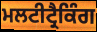
ਮਲਟੀਟ੍ਰੈਕਿੰਗ